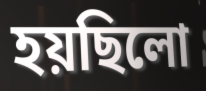
হয়ছিলো